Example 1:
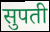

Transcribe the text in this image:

सुपती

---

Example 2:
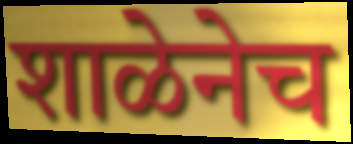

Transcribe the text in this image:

शाळेनेच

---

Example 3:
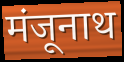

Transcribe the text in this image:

मंजूनाथ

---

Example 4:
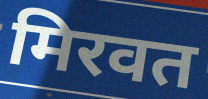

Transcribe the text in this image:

मिरवत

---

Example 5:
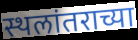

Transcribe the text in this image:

स्थलांतराच्या